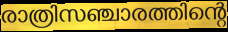
രാത്രിസഞ്ചാരത്തിന്റെ